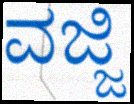
ವಜ್ಜಿ